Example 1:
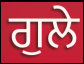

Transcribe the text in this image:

ਗੁਲੇ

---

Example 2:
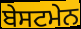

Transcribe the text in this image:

ਬੇਸਟਮੇਨ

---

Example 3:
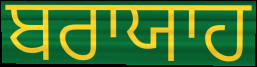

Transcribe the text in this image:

ਬਰਾਯਾਹ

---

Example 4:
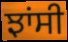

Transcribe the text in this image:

ਝਾਂਸੀ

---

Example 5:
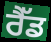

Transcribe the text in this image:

ਰੈੱਡ